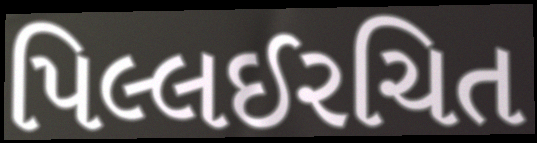
પિલ્લઈરચિત